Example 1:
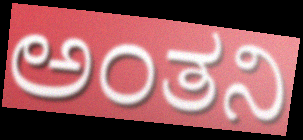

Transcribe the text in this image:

ಅಂತನಿ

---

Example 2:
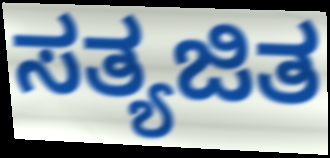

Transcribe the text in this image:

ಸತ್ಯಜಿತ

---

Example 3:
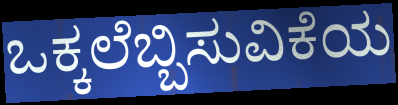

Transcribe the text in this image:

ಒಕ್ಕಲೆಬ್ಬಿಸುವಿಕೆಯ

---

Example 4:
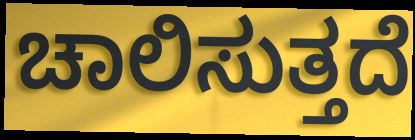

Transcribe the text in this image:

ಚಾಲಿಸುತ್ತದೆ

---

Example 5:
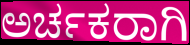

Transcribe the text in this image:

ಅರ್ಚಕರಾಗಿ